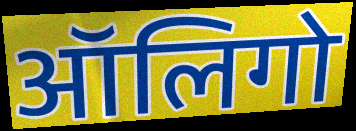
ऑलिगो